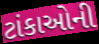
ટાંકાઓની